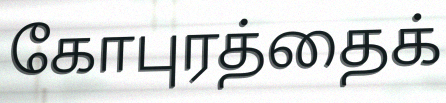
கோபுரத்தைக்